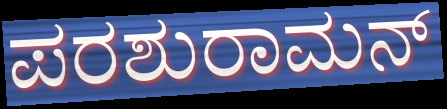
ಪರಶುರಾಮನ್